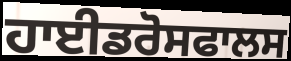
ਹਾਈਡਰੋਸਫਾਲਸ